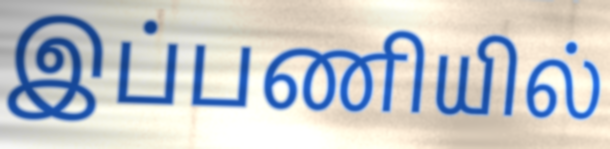
இப்பணியில்